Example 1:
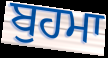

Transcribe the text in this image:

ਬੁਹਮਾ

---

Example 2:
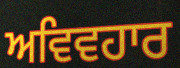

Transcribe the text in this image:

ਅਵਿਵਹਾਰ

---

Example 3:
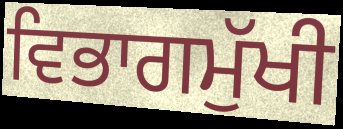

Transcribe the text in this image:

ਵਿਭਾਗਮੁੱਖੀ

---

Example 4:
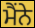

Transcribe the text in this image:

ਮੈਂਨੇ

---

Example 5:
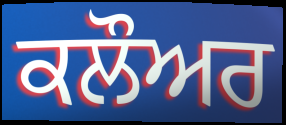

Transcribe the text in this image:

ਕਲੌਅਰ